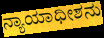
ನ್ಯಾಯಾಧೀಶನು